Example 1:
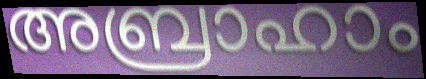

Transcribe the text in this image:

അബ്രാഹാം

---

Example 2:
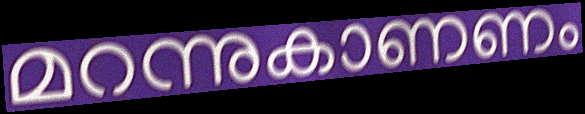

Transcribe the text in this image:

മറന്നുകാണണം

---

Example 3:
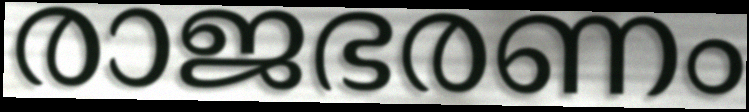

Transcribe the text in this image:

രാജഭരണം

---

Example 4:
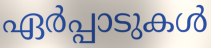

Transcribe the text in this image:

ഏർപ്പാടുകൾ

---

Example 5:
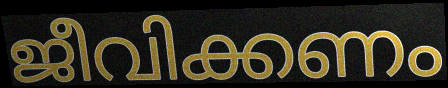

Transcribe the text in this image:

ജീവിക്കണം